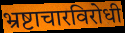
भ्रष्टाचारविरोधी